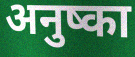
अनुष्का